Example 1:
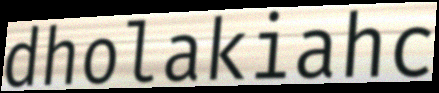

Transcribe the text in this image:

dholakiahc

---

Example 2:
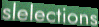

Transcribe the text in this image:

slelections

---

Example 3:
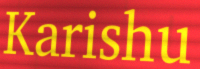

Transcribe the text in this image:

Karishu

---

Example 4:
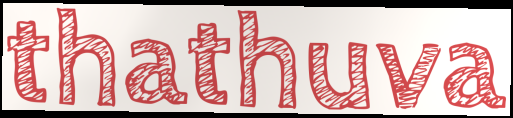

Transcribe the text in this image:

thathuva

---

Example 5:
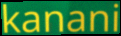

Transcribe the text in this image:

kanani